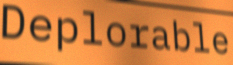
Deplorable